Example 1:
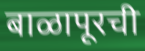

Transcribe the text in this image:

बाळापूरची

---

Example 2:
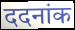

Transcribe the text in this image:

ददनांक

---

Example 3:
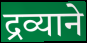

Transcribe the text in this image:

द्रव्याने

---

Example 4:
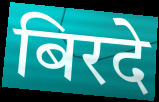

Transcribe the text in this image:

बिरदे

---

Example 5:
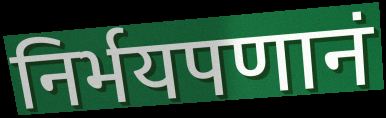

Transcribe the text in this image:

निर्भयपणानं